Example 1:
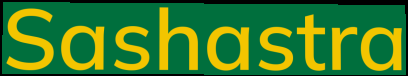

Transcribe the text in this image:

Sashastra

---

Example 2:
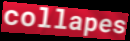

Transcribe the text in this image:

collapes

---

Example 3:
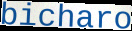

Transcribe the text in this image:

bicharo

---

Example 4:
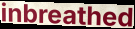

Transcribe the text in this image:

inbreathed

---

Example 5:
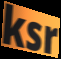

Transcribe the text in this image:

ksr